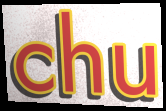
chu